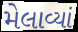
મેલાવ્યાં